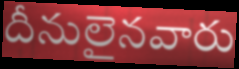
దీనులైనవారు